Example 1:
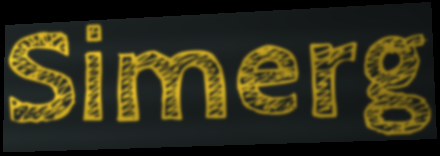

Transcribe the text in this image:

Simerg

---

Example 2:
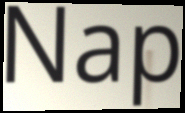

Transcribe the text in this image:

Nap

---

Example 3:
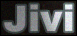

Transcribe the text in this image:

Jivi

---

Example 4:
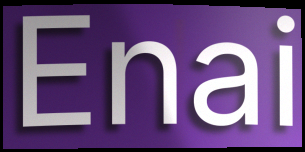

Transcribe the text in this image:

Enai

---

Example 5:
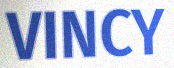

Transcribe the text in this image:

VINCY